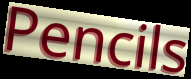
Pencils